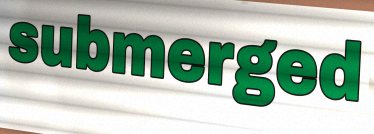
submerged